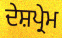
ਦੇਸ਼ਪ੍ਰੇਮ